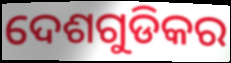
ଦେଶଗୁଡିକର